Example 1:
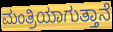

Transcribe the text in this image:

ಮಂತ್ರಿಯಾಗುತ್ತಾನೆ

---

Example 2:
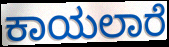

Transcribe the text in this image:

ಕಾಯಲಾರೆ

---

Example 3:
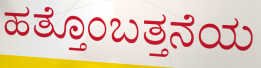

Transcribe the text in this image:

ಹತ್ತೊಂಬತ್ತನೆಯ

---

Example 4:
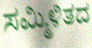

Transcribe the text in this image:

ಸಮ್ಮಿಳಿತದ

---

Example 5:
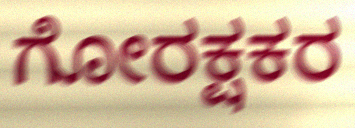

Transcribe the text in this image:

ಗೋರಕ್ಷಕರ